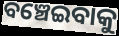
ବଞ୍ଚେଇବାକୁ